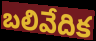
బలివేదిక